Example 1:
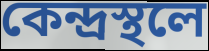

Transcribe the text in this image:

কেন্দ্রস্থলে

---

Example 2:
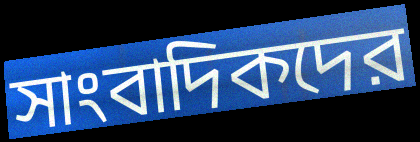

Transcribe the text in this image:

সাংবাদিকদের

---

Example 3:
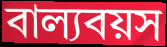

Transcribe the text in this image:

বাল্যবয়স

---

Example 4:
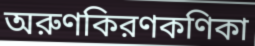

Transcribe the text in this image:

অরুণকিরণকণিকা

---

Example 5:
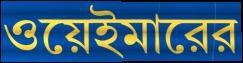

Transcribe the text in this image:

ওয়েইমারের